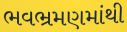
ભવભ્રમણમાંથી